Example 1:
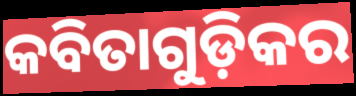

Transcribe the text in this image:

କବିତାଗୁଡ଼ିକର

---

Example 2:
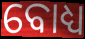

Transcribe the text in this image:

ବୋଧ୍ୟ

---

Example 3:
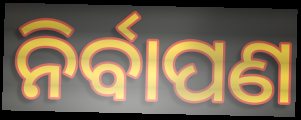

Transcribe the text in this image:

ନିର୍ବାପଣ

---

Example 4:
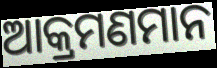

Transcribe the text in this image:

ଆକ୍ରମଣମାନ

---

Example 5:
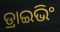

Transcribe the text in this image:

ଡ୍ରାଇଭିଂ